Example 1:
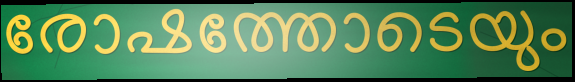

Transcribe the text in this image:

രോഷത്തോടെയും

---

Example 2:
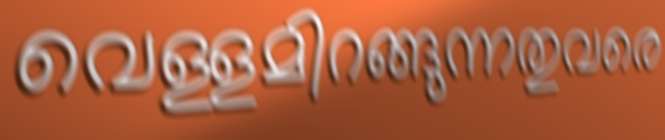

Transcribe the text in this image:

വെള്ളമിറങ്ങുന്നതുവരെ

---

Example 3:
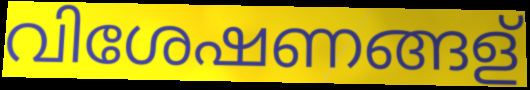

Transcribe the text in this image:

വിശേഷണങ്ങള്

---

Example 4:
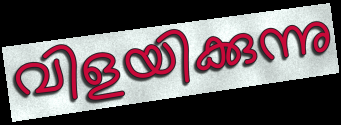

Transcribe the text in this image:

വിളയിക്കുന്നു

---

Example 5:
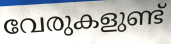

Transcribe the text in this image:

വേരുകളുണ്ട്